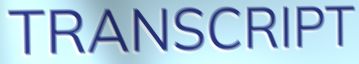
TRANSCRIPT